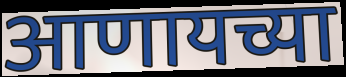
आणायच्या